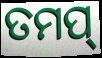
ତମପ୍